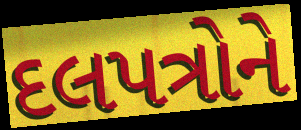
દલપત્રોને